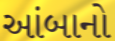
આંબાનો